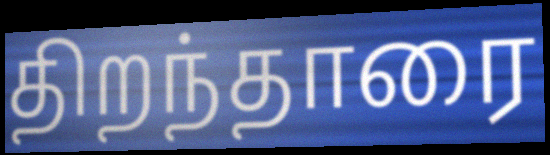
திறந்தாரை